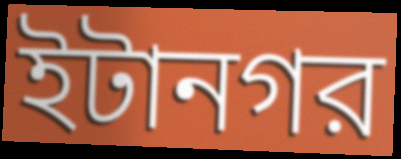
ইটানগর